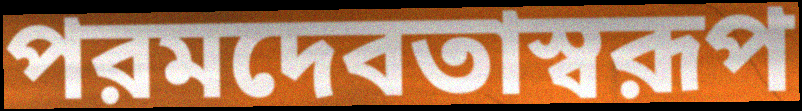
পরমদেবতাস্বরূপ